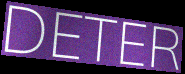
DETER